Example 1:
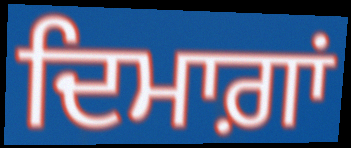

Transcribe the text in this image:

ਦਿਮਾਗ਼ਾਂ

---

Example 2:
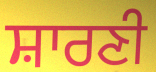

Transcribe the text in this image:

ਸ਼ਾਰਣੀ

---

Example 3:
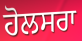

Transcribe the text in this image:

ਹੋਲਸਰਾ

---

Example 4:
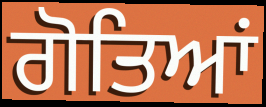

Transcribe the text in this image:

ਗੋਤਿਆਂ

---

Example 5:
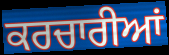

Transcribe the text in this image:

ਕਰਚਾਰੀਆਂ